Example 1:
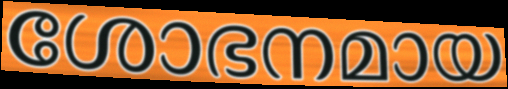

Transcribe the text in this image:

ശോഭനമായ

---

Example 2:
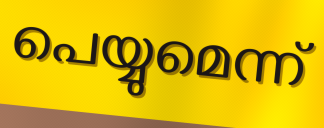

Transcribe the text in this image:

പെയ്യുമെന്ന്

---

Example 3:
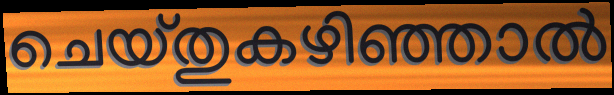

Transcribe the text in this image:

ചെയ്തുകഴിഞ്ഞാൽ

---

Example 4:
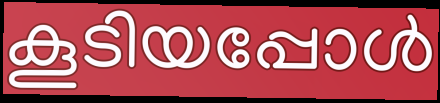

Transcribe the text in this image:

കൂടിയപ്പോൾ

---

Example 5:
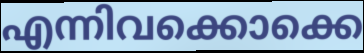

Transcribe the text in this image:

എന്നിവക്കൊക്കെ